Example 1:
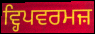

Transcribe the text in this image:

ਵ੍ਹਿਪਵਰਮਜ਼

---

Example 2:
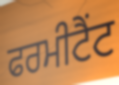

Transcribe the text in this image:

ਫਰਮੀਟੈਂਟ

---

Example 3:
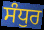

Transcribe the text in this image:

ਸੰਧੁਰ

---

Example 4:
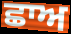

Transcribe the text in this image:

ਛਾਅ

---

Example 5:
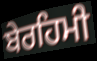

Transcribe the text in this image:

ਬੇਰਹਿਮੀ